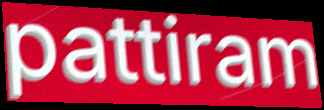
pattiram